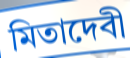
মিতাদেবী